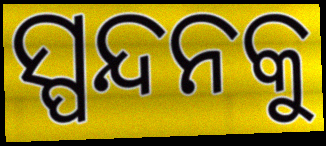
ସ୍ପନ୍ଦନକୁ